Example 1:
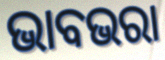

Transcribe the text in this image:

ଭାବଭରା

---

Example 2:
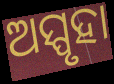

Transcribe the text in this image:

ଅସ୍ପୃହା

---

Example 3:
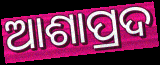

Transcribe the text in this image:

ଆଶାପ୍ରଦ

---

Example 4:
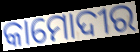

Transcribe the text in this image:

କାମୋଦୀର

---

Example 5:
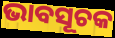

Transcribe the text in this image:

ଭାବସୂଚକ